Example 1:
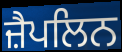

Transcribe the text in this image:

ਜ਼ੈਪਲਿਨ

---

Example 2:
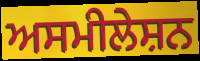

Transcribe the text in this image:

ਅਸਮੀਲੇਸ਼ਨ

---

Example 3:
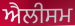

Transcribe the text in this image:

ਐਲੀਸਮ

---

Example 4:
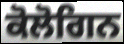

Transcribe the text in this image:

ਕੋਲੋਗਿਨ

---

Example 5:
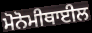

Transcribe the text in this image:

ਮੋਨੋਮੀਥਾਈਲ